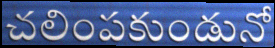
చలింపకుండునో